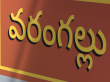
వరంగల్లు